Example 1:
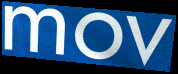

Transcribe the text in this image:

mov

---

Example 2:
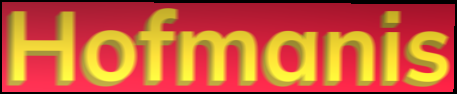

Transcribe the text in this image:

Hofmanis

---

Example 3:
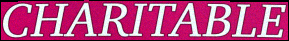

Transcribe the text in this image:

CHARITABLE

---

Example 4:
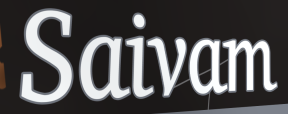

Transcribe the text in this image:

Saivam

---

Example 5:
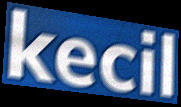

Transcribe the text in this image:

kecil